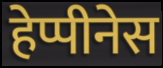
हेप्पीनेस